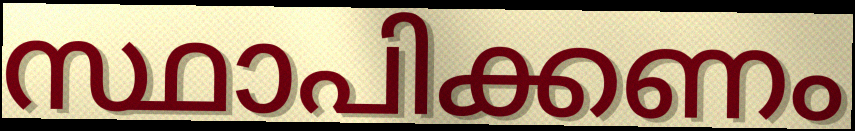
സ്ഥാപിക്കണം